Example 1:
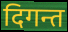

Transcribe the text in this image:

दिगन्त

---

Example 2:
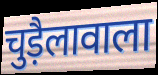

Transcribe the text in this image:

चुड़ैलावाला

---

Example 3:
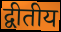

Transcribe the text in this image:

द्वीतीय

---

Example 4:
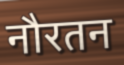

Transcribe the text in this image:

नौरतन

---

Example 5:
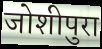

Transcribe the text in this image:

जोशीपुरा